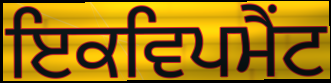
ਇਕਵਿਪਮੈਂਟ